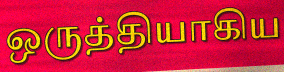
ஒருத்தியாகிய